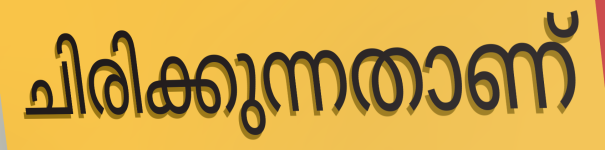
ചിരിക്കുന്നതാണ്